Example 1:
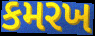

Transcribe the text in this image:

કમરખ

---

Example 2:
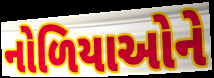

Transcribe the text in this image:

નોળિયાઓને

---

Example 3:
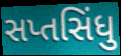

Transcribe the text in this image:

સપ્તસિંધુ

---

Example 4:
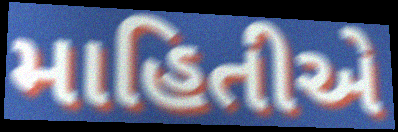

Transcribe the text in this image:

માહિતીએ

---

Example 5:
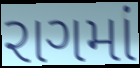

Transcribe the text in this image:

રાગમાં